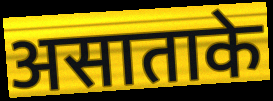
असाताके